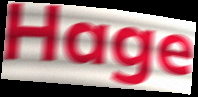
Hage